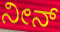
ನೀನ್